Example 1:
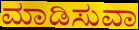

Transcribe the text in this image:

ಮಾಡಿಸುವಾ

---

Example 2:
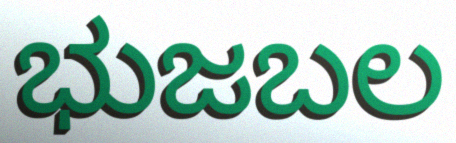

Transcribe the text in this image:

ಭುಜಬಲ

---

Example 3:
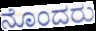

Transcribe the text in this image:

ನೊಂದರು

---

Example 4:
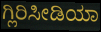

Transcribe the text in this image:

ಗ್ಲಿರಿಸೀಡಿಯಾ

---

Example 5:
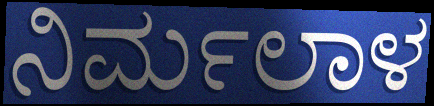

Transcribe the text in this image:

ನಿರ್ಮಲಾಳ